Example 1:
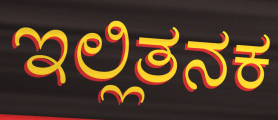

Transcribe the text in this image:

ಇಲ್ಲಿತನಕ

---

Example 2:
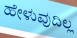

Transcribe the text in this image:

ಹೇಳುವುದಿಲ್ಲ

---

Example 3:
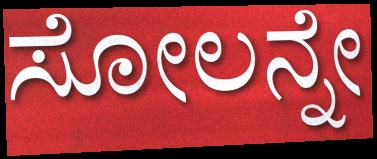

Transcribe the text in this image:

ಸೋಲನ್ನೇ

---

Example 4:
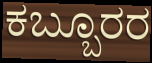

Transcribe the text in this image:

ಕಬ್ಬೂರರ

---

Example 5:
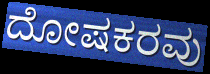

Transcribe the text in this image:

ದೋಷಕರವು